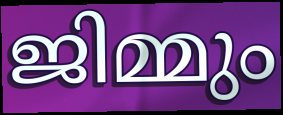
ജിമ്മും